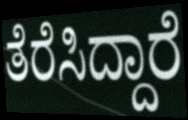
ತೆರೆಸಿದ್ದಾರೆ